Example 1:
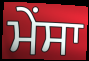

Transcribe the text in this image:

ਮੇਂਸਾ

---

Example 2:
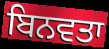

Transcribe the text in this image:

ਬਿਨਵਤਾ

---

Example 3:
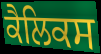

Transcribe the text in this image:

ਕੈਲਿਕਸ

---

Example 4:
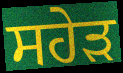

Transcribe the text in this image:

ਸਹੇੜ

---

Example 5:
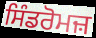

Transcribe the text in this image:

ਸਿੰਡਰੋਮਜ਼